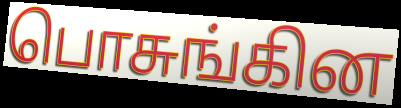
பொசுங்கின